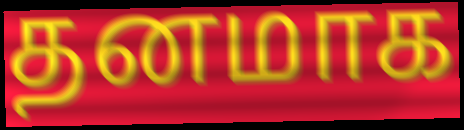
தனமாக